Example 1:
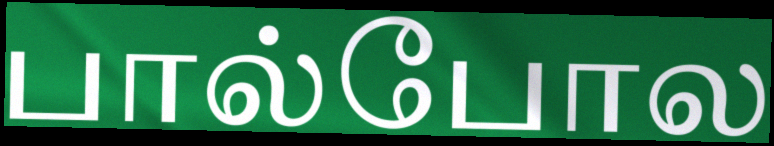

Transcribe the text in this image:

பால்போல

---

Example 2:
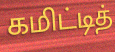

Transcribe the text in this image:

கமிட்டித்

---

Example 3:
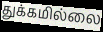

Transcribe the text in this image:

துக்கமில்லை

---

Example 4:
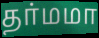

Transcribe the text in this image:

தர்மமா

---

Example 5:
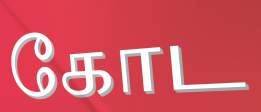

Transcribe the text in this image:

கோட